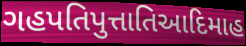
ગહપતિપુત્તાતિઆદિમાહ